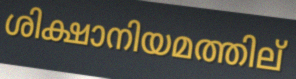
ശിക്ഷാനിയമത്തില്